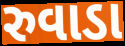
રુવાડા